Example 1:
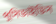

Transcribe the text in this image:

থুসিডাইডিস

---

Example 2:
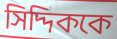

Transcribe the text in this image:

সিদ্দিককে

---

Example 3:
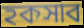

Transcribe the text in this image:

হকসাব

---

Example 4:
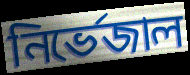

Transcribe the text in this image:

নির্ভেজাল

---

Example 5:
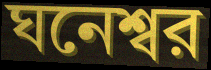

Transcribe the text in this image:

ঘনেশ্বর